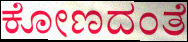
ಕೋಣದಂತೆ